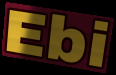
Ebi